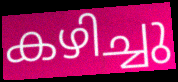
കഴിച്ചു